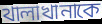
থালাখানাকে